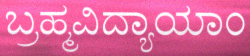
ಬ್ರಹ್ಮವಿದ್ಯಾಯಾಂ